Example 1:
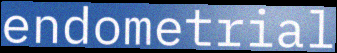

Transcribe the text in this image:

endometrial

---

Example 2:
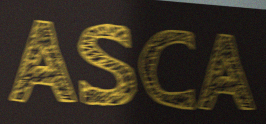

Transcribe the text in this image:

ASCA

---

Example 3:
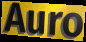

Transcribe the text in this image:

Auro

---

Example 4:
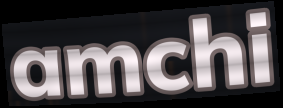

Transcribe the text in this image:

amchi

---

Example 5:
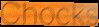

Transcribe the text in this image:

Chocks